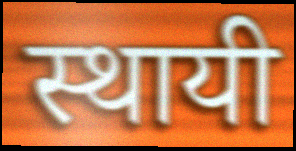
स्थायी